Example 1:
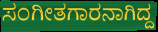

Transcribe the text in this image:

ಸಂಗೀತಗಾರನಾಗಿದ್ದ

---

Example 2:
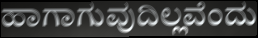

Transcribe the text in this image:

ಹಾಗಾಗುವುದಿಲ್ಲವೆಂದು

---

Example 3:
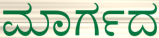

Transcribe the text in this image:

ಮಾರ್ಗದ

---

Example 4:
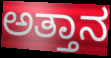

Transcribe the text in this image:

ಅತ್ತಾನ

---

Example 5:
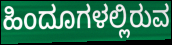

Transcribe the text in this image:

ಹಿಂದೂಗಳಲ್ಲಿರುವ